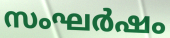
സംഘർഷം